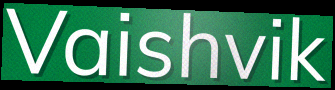
Vaishvik